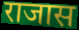
राजास